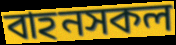
বাহনসকল